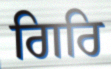
ਗਿਰਿ